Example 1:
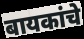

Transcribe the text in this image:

बायकांचे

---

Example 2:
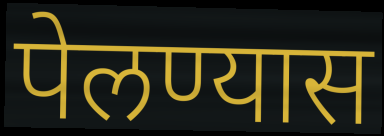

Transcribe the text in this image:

पेलण्यास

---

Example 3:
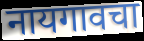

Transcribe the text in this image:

नायगावचा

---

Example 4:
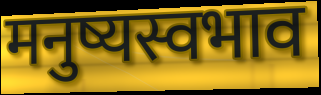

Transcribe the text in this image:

मनुष्यस्वभाव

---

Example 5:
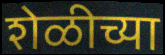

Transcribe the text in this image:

शेळीच्या